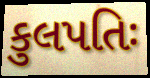
કુલપતિઃ